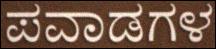
ಪವಾಡಗಳ